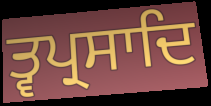
ਤ੍ਵਪ੍ਰਸਾਦਿ